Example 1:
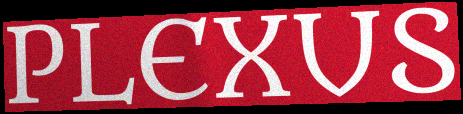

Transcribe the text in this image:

PLEXUS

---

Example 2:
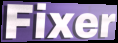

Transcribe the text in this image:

Fixer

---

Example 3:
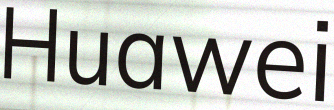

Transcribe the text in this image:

Huawei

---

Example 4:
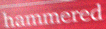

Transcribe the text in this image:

hammered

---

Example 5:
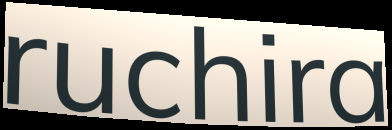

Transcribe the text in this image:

ruchira